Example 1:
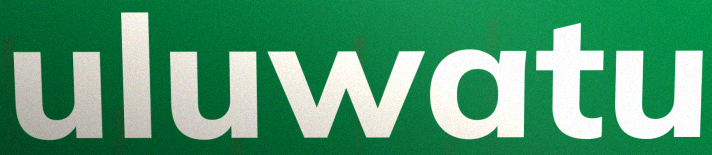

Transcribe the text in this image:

uluwatu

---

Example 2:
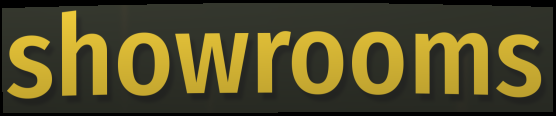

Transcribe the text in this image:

showrooms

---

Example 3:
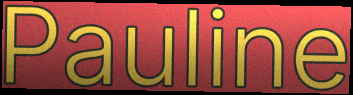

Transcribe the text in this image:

Pauline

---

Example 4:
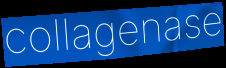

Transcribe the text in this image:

collagenase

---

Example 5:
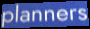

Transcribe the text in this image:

planners